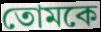
তোমকে